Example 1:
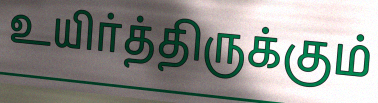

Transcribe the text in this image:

உயிர்த்திருக்கும்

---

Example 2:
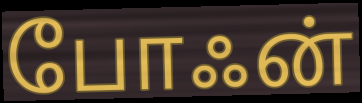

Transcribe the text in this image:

போஃன்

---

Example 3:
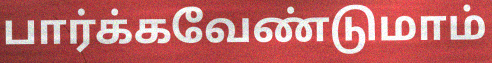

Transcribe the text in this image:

பார்க்கவேண்டுமாம்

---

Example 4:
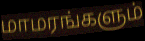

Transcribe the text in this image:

மாமரங்களும்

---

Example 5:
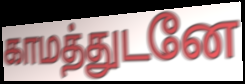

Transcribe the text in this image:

காமத்துடனே